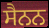
ਸੈਨਨ